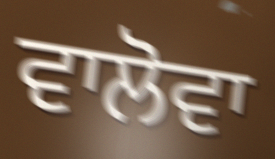
ਵਾਲੋਵਾ